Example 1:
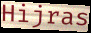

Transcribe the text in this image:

Hijras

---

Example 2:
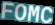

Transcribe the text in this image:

FOMC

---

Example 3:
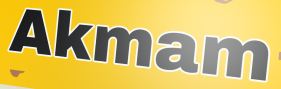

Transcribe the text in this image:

Akmam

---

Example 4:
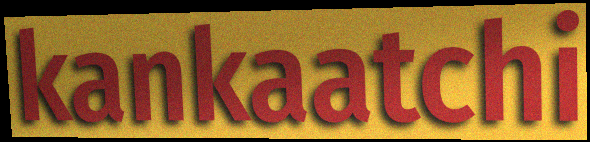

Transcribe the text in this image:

kankaatchi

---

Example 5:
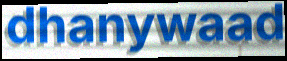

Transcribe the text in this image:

dhanywaad